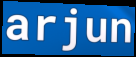
arjun